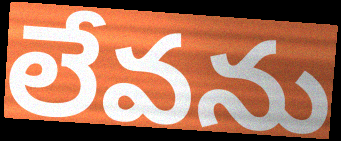
లేవను